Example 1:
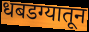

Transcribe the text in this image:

धबडग्यातून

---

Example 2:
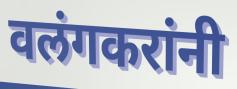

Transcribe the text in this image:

वलंगकरांनी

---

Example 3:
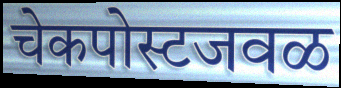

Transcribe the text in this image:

चेकपोस्टजवळ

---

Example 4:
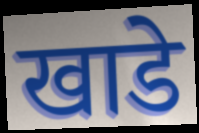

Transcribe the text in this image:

खाडे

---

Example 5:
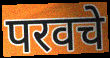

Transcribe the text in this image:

परवचे